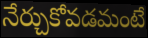
నేర్చుకోవడమంటే